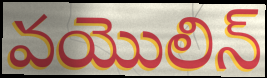
వయొలిన్